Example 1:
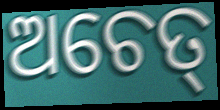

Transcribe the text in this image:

ଅଚେତ୍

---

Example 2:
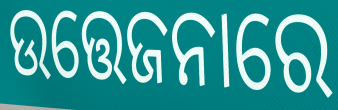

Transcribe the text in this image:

ଉତ୍ତେଜନାରେ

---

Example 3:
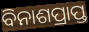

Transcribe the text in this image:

ବିନାଶପ୍ରାପ୍ତ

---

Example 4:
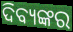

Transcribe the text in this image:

ଦିବ୍ୟଙ୍କର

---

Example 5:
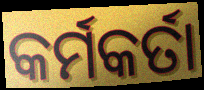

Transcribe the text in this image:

କର୍ମକର୍ତା